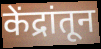
केंद्रांतून